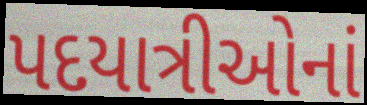
પદયાત્રીઓનાં